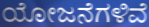
ಯೋಜನೆಗಳಿವೆ